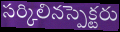
సర్కిలినస్పెక్టరు